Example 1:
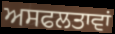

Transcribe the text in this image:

ਅਸਫਲਤਾਵਾਂ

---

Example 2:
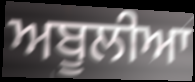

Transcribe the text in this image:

ਅਬੂਲੀਆ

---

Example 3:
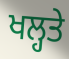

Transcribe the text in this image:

ਖਲ੍ਹਤੇ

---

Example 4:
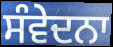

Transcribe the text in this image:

ਸੰਵੇਦਨਾ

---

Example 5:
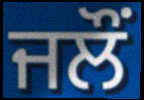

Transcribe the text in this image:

ਜਲੌਂ